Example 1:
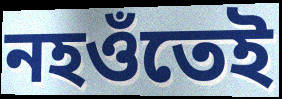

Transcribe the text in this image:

নহওঁতেই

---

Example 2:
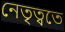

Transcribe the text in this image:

নেতৃত্বতে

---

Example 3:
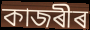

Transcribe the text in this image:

কাজৰীৰ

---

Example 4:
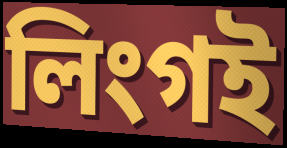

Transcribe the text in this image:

লিংগই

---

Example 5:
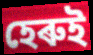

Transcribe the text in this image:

হেৰুই